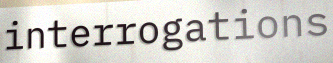
interrogations